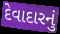
દેવાદારનું